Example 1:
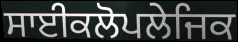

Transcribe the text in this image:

ਸਾਈਕਲੋਪਲੇਜਿਕ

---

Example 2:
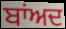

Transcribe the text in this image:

ਬਾਂਅਦ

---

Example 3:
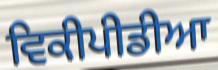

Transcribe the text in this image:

ਵਿਕੀਪੀਡੀਆ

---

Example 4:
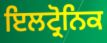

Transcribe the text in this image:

ਇਲਟ੍ਰੋਨਿਕ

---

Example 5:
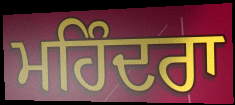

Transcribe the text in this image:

ਮਹਿੰਦਰਾ